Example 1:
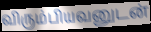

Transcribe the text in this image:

விரும்பியவனுடன்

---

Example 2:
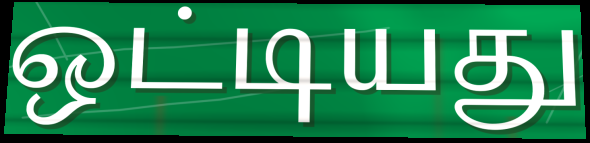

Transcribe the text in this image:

ஒட்டியது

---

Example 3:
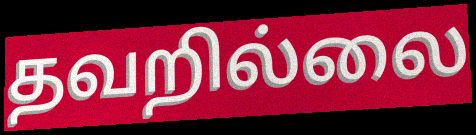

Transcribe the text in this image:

தவறில்லை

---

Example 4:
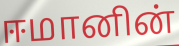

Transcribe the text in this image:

ஈமானின்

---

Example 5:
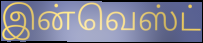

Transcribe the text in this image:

இன்வெஸ்ட்